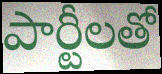
పార్టీలతో